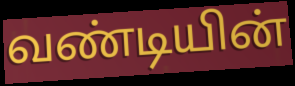
வண்டியின்